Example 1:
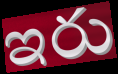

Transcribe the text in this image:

ఇరు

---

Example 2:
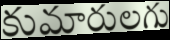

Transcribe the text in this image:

కుమారులగు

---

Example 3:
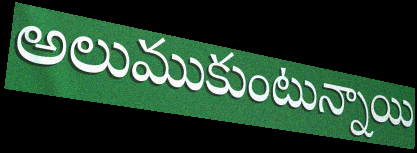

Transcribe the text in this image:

అలుముకుంటున్నాయి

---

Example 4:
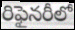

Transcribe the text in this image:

రిఫైనరీలో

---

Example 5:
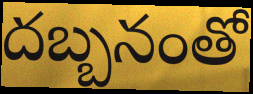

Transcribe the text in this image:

దబ్బనంతో